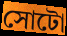
সোটো